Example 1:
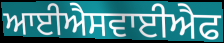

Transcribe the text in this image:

ਆਈਐਸਵਾਈਐਫ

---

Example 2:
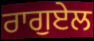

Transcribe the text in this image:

ਰਾਗੁਏਲ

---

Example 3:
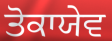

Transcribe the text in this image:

ਤੋਕਾਯੇਵ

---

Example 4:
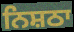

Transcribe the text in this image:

ਨਿਸ਼ਠਾ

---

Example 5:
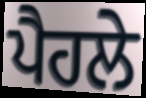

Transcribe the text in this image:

ਪੈਹਲੇ